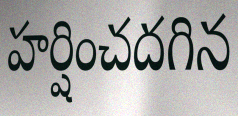
హర్షించదగిన